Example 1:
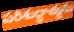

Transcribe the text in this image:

పరిశుద్ధాత్మను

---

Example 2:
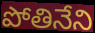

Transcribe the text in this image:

పోతినేని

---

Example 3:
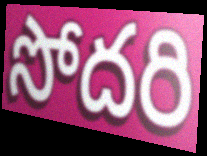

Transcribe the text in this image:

సోదరి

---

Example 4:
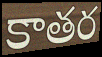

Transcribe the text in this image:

కాతర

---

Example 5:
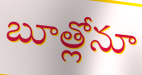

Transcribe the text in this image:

బూత్లోనూ